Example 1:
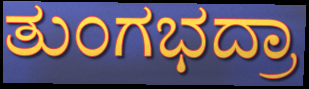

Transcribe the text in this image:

ತುಂಗಭದ್ರಾ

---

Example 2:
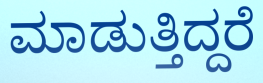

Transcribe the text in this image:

ಮಾಡುತ್ತಿದ್ದರೆ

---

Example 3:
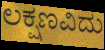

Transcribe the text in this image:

ಲಕ್ಷಣವಿದು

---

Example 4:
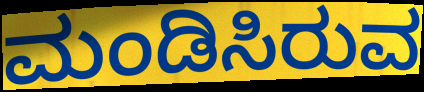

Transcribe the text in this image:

ಮಂಡಿಸಿರುವ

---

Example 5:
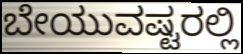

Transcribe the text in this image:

ಬೇಯುವಷ್ಟರಲ್ಲಿ